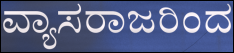
ವ್ಯಾಸರಾಜರಿಂದ